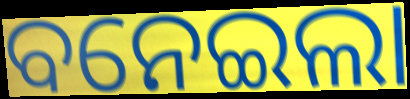
ବନେଇଲା